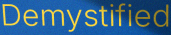
Demystified